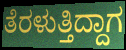
ತೆರಳುತ್ತಿದ್ದಾಗ